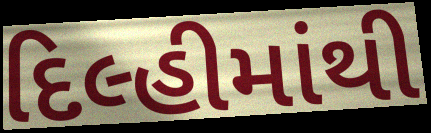
દિલ્હીમાંથી